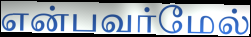
என்பவர்மேல்